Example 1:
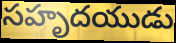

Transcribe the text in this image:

సహృదయుడు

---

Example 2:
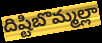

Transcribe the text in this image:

దిష్టిబొమ్మల్లా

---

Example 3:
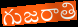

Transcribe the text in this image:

గుజరాతి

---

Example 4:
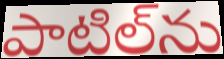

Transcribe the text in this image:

పాటిల్‌ను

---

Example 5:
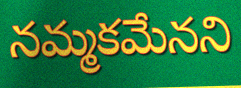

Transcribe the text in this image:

నమ్మకమేనని